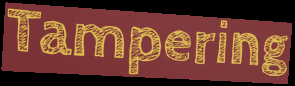
Tampering